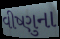
વીષ્ણુના